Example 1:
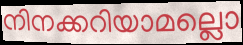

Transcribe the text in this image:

നിനക്കറിയാമല്ലൊ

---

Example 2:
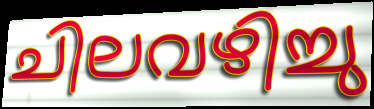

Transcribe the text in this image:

ചിലവഴിച്ചു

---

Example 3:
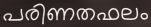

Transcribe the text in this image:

പരിണതഫലം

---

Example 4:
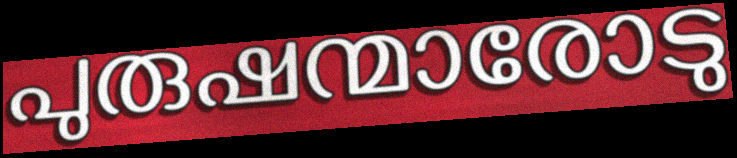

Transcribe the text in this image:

പുരുഷന്മാരോടു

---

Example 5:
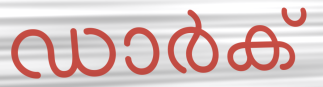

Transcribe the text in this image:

ഡാർക്